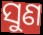
ସୁଣ